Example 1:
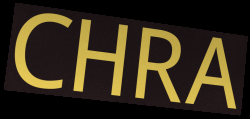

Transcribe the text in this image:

CHRA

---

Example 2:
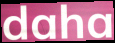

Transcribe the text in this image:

daha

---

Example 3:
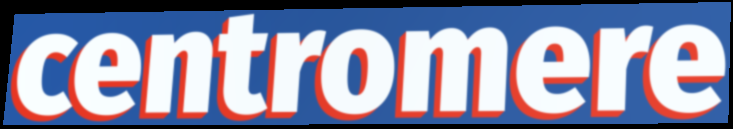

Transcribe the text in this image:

centromere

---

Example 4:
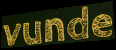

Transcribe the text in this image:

vunde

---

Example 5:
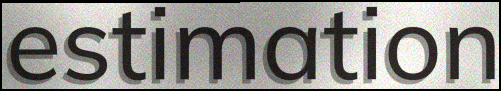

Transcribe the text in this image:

estimation